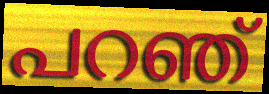
പറഞ്